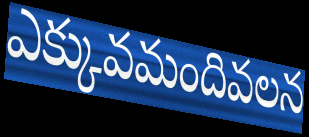
ఎక్కువమందివలన